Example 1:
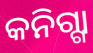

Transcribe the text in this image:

କନିଗ୍ଗା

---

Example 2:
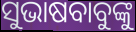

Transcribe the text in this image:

ସୁଭାଷବାବୁଙ୍କୁ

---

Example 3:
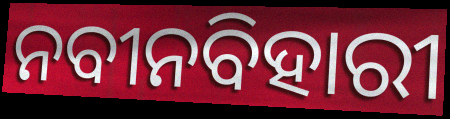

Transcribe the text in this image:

ନବୀନବିହାରୀ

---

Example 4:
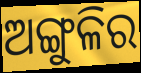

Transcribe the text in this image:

ଅଙ୍ଗୁଳିର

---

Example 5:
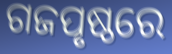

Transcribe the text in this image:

ଗଜପୃଷ୍ଠରେ